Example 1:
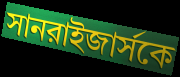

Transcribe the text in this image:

সানরাইজার্সকে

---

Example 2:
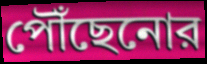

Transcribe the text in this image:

পৌঁছেনোর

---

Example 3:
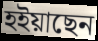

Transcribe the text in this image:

হইয়াছেন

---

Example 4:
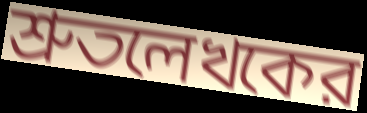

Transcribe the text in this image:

শ্রুতলেখকের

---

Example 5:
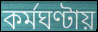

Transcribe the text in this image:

কর্মঘণ্টায়